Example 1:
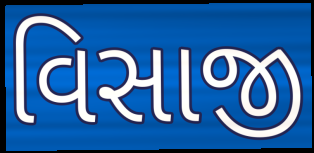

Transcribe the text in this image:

વિસાજી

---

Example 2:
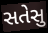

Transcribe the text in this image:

સતેસુ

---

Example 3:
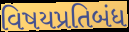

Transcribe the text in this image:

વિષયપ્રતિબંધ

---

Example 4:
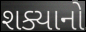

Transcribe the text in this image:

શક્યાનો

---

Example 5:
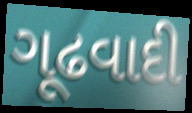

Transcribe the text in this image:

ગૂઢવાદી